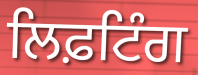
ਲਿਫ਼ਟਿੰਗ